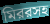
মিররসহ